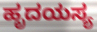
ಹೃದಯಸ್ಯ